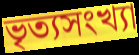
ভৃত্যসংখ্যা